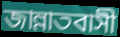
জান্নাতবাসী